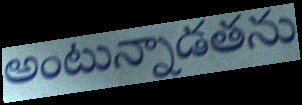
అంటున్నాడతను